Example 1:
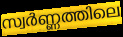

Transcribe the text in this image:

സ്വർണ്ണത്തിലെ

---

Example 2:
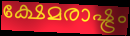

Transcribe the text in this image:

ക്ഷേമരാഷ്ട്രം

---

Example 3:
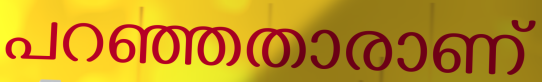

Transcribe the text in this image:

പറഞ്ഞതാരാണ്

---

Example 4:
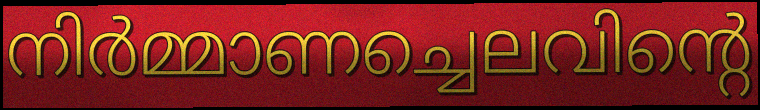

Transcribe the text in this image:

നിർമ്മാണച്ചെലവിന്റെ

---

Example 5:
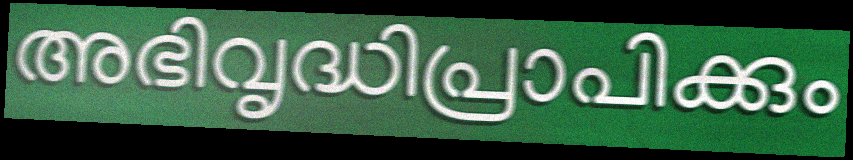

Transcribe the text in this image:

അഭിവൃദ്ധിപ്രാപിക്കും